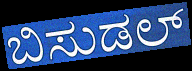
ಬಿಸುಡಲ್